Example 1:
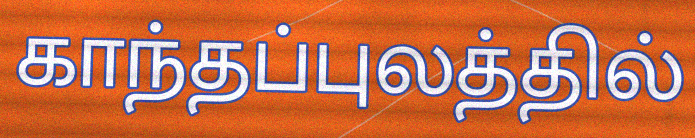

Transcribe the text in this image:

காந்தப்புலத்தில்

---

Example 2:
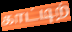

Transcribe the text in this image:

காட்டிற்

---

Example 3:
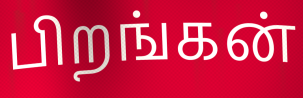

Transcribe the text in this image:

பிறங்கன்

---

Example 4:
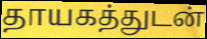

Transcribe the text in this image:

தாயகத்துடன்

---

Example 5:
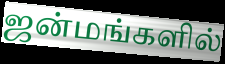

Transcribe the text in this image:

ஜன்மங்களில்